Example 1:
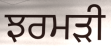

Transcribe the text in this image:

ਝਰਮੜੀ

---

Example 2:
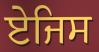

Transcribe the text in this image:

ਏਜਿਸ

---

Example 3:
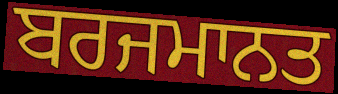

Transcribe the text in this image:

ਬਰਜਮਾਨਤ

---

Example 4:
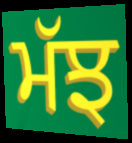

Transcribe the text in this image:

ਮੱਝ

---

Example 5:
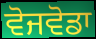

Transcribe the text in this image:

ਵੋਜਵੋਡਾ